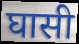
घासी